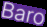
Baro